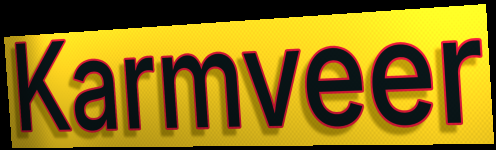
Karmveer